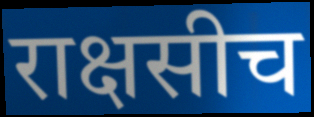
राक्षसीच